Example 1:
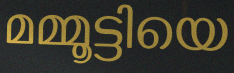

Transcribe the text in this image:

മമ്മൂട്ടിയെ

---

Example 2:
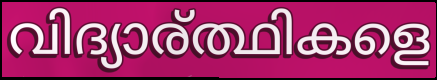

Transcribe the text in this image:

വിദ്യാര്ത്ഥികളെ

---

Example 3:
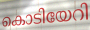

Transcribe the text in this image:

കൊടിയേറി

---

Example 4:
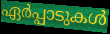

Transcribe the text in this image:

ഏർപ്പാടുകൾ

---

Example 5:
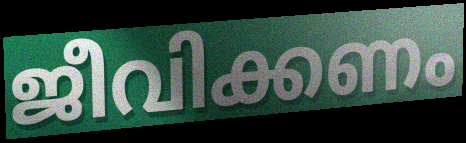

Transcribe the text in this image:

ജീവിക്കണം